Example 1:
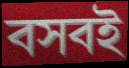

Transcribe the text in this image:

বসবই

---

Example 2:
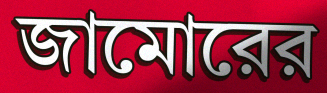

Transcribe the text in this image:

জামোরের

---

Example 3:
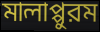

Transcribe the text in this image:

মালাপ্পুরম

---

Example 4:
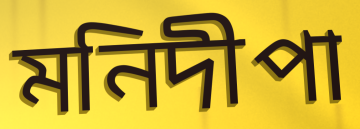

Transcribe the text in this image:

মনিদীপা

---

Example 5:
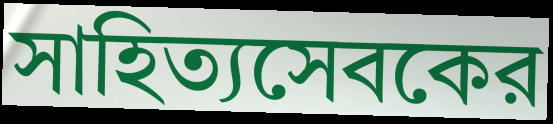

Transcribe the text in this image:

সাহিত্যসেবকের